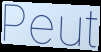
Peut